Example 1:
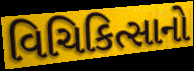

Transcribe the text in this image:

વિચિકિત્સાનો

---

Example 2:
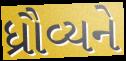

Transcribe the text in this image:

ધ્રૌવ્યને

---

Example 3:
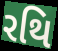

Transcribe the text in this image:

રથિ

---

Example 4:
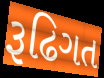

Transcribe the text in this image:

રૂઢિગત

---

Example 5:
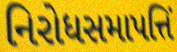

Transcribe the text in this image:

નિરોધસમાપત્તિં